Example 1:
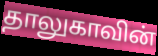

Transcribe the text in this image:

தாலுகாவின்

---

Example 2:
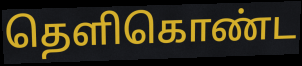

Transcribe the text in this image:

தெளிகொண்ட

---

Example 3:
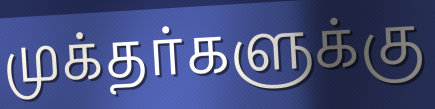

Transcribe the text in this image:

முக்தர்களுக்கு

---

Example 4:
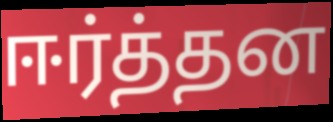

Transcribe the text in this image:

ஈர்த்தன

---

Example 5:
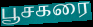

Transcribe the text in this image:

பூசகரை